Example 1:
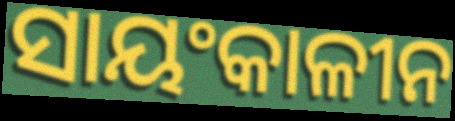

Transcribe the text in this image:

ସାୟଂକାଳୀନ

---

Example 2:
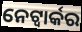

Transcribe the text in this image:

ନେଟ୍ୱାର୍କର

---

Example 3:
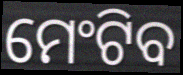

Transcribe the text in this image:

ମେଂଟିବ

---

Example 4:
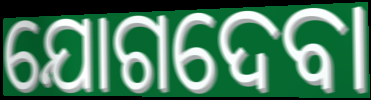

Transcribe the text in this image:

ଯୋଗଦେବା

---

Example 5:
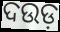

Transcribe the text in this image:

ଦଉଡ଼